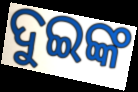
ଦୁଇଙ୍କ